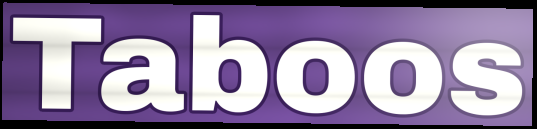
Taboos